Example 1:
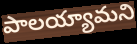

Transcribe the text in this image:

పాలయ్యామని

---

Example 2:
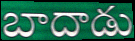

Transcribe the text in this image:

బాదాడు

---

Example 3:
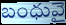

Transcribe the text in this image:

బంధువై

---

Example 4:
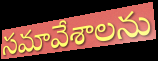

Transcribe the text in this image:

సమావేశాలను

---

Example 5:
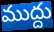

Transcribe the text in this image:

ముద్దు